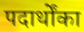
पदार्थोंका